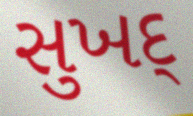
સુખદ્